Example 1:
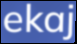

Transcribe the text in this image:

ekaj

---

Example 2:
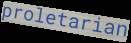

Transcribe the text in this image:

proletarian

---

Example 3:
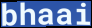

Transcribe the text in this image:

bhaai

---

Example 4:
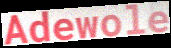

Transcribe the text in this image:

Adewole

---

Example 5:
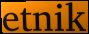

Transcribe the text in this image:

etnik